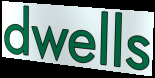
dwells